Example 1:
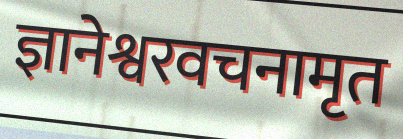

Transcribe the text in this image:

ज्ञानेश्वरवचनामृत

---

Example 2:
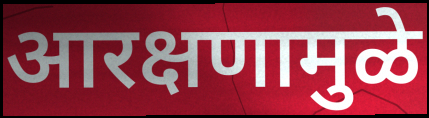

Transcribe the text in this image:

आरक्षणामुळे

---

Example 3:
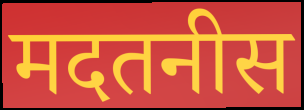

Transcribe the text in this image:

मदतनीस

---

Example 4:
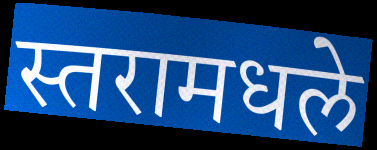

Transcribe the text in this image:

स्तरामधले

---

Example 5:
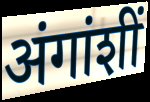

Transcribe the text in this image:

अंगांशीं